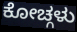
ಕೋಚ್ಗಳು